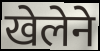
खेलेने